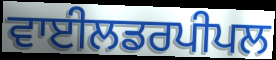
ਵਾਈਲਡਰਪੀਪਲ